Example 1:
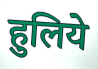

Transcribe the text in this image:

हुलिये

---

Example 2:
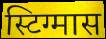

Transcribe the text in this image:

स्टिग्मास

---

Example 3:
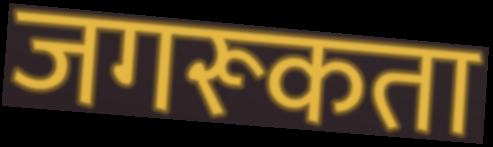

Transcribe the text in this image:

जगरूकता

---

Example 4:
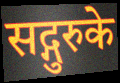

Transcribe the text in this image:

सद्गुरुके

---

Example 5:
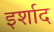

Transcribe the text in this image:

इर्शाद